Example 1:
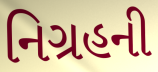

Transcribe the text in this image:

નિગ્રહની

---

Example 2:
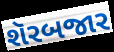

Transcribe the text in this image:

શૅરબજાર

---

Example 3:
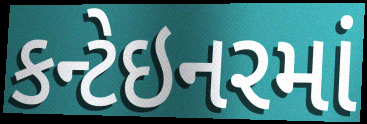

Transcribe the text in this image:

કન્ટેઇનરમાં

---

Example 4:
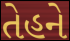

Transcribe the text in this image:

તેહને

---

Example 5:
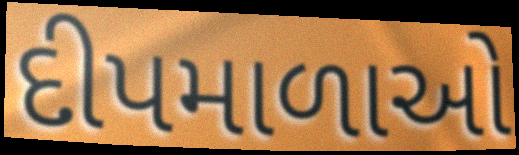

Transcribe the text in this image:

દીપમાળાઓ